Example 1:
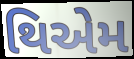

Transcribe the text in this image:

થિએમ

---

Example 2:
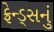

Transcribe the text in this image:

ફ્રેન્ડ્સનું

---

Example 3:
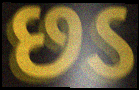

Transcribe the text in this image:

છડ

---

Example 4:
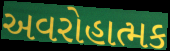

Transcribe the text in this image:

અવરોહાત્મક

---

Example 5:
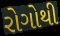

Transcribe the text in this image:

રોગોથી